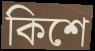
কিশে